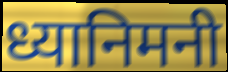
ध्यानिमनी